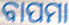
ବାପମା